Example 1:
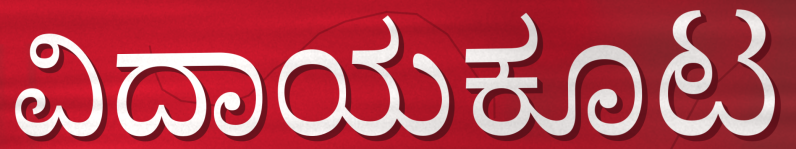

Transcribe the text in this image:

ವಿದಾಯಕೂಟ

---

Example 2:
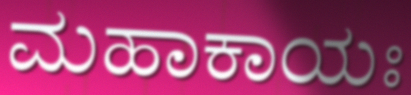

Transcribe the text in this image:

ಮಹಾಕಾಯಃ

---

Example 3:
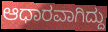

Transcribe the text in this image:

ಆಧಾರವಾಗಿದ್ದು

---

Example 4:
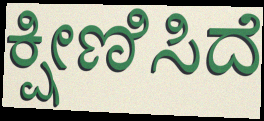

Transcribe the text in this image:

ಕ್ಷೀಣಿಸಿದೆ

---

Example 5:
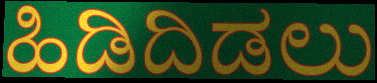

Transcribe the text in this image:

ಹಿಡಿದಿಡಲು